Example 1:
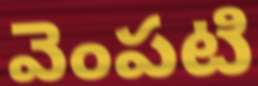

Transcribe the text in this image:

వెంపటి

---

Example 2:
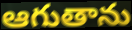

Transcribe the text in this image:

ఆగుతాను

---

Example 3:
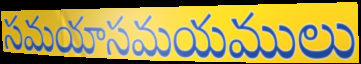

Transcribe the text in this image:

సమయాసమయములు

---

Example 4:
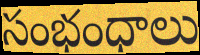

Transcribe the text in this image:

సంభంధాలు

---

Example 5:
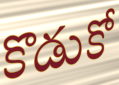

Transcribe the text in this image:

కొడుకో